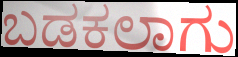
ಬಡಕಲಾಗು